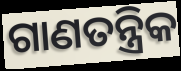
ଗାଣତନ୍ତ୍ରିକ